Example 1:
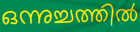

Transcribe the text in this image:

ഒന്നുച്ചത്തിൽ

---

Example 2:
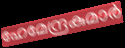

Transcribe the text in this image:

ഹേമേന്ദ്രകുമാർ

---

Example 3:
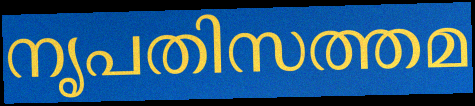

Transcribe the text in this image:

നൃപതിസത്തമ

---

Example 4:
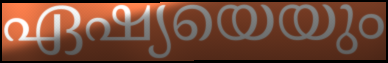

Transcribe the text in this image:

ഏഷ്യയെയും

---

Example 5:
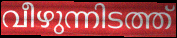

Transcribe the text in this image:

വീഴുന്നിടത്ത്